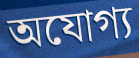
অযোগ্য